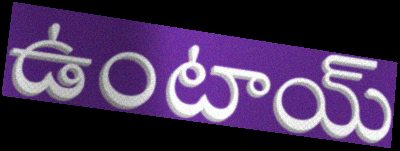
ఉంటాయ్